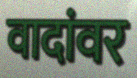
वादांवर